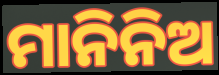
ମାନିନିଅ